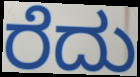
ರೆದು